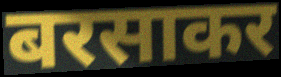
बरसाकर